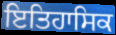
ਇਤਿਹਾਸਿਕ